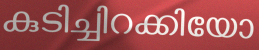
കുടിച്ചിറക്കിയോ